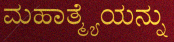
ಮಹಾತ್ಮ್ಯೆಯನ್ನು